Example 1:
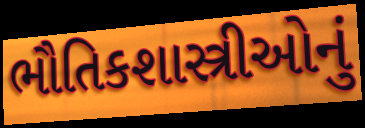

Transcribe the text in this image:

ભૌતિકશાસ્ત્રીઓનું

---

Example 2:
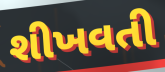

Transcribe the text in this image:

શીખવતી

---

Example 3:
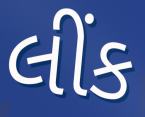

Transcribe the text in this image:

લીંક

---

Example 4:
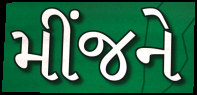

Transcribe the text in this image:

મીંજને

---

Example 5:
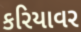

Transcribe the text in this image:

કરિયાવર